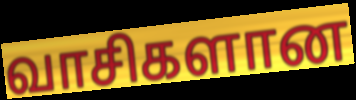
வாசிகளான